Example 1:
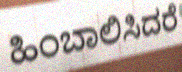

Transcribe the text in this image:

ಹಿಂಬಾಲಿಸಿದರೆ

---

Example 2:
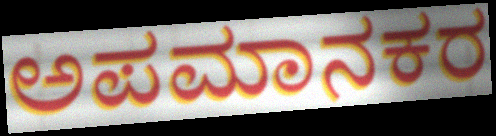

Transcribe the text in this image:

ಅಪಮಾನಕರ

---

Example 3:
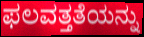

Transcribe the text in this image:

ಫಲವತ್ತತೆಯನ್ನು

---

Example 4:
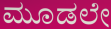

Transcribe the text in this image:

ಮೂಡಲೇ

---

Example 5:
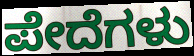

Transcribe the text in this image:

ಪೇದೆಗಳು